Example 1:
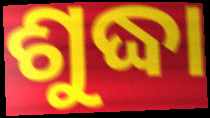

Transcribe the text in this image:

ଶୁଦ୍ଧା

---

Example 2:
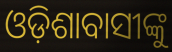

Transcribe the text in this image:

ଓଡ଼ିଶାବାସୀଙ୍କୁ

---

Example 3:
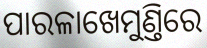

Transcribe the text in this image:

ପାରଳାଖେମୁଣ୍ତିରେ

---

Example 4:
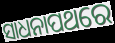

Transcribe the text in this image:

ସାଧନାପଥରେ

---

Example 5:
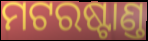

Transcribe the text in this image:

ମଟରଷ୍ଟାଣ୍ଡ